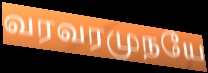
வரவரமுநயே